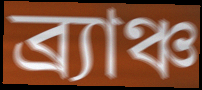
ব্র্যাঞ্চ